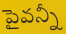
పైవన్నీ